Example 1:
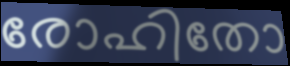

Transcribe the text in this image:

രോഹിതോ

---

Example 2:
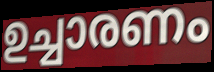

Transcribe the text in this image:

ഉച്ചാരണം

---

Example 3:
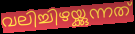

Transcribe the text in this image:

വലിച്ചിഴയ്ക്കുന്നത്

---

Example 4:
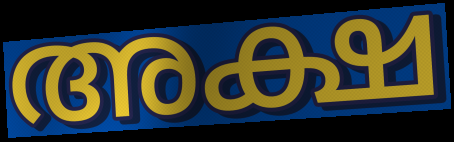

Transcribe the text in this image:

അക്ഷ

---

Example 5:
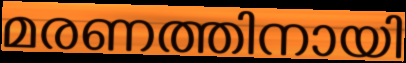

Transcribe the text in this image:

മരണത്തിനായി